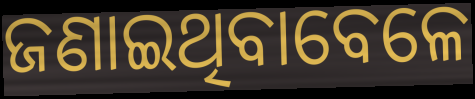
ଜଣାଇଥିବାବେଳେ